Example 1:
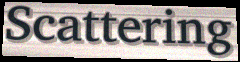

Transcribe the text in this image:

Scattering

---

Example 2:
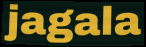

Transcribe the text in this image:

jagala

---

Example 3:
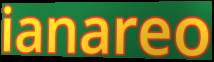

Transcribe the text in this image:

ianareo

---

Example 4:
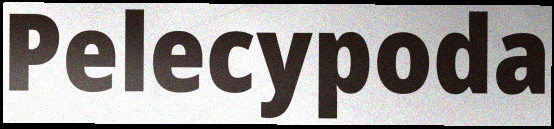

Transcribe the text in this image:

Pelecypoda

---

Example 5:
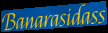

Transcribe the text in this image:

Banarasidass